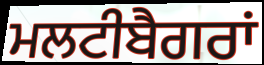
ਮਲਟੀਬੈਗਰਾਂ